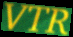
VTR